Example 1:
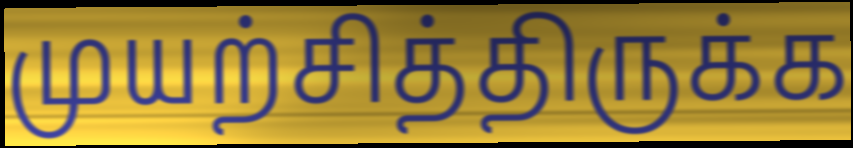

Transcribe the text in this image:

முயற்சித்திருக்க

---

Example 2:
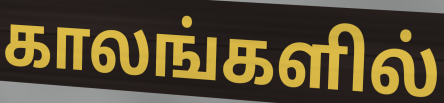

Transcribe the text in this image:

காலங்களில்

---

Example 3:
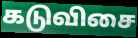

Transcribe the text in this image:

கடுவிசை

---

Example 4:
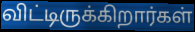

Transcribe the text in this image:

விட்டிருக்கிறார்கள்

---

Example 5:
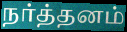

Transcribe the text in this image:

நர்த்தனம்